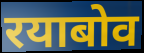
रयाबोव